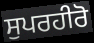
ਸੁਪਰਹੀਰੋ